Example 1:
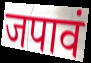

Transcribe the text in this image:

जपावं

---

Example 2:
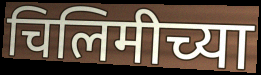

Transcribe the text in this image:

चिलिमीच्या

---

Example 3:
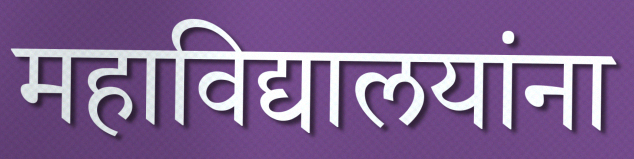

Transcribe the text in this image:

महाविद्यालयांना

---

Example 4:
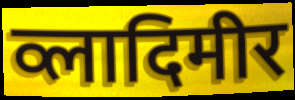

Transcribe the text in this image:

व्लादिमीर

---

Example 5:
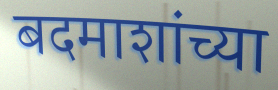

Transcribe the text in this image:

बदमाशांच्या